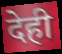
देही